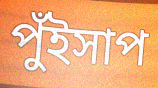
পুঁইসাপ